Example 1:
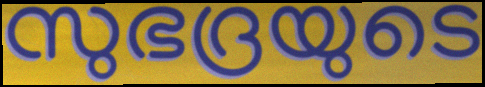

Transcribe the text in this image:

സുഭദ്രയുടെ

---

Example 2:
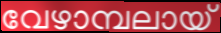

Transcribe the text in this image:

വേഴാമ്പലായ്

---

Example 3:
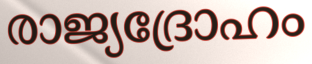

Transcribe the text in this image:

രാജ്യദ്രോഹം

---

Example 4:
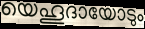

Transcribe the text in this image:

യെഹൂദായോടും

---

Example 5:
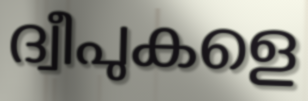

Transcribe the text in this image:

ദ്വീപുകളെ